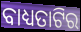
ବାଧ୍ୟତାଟିର